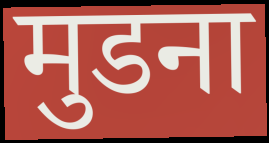
मुडना